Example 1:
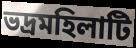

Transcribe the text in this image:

ভদ্রমহিলাটি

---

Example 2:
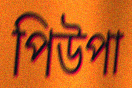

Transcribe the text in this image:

পিউপা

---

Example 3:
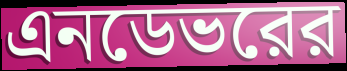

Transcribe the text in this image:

এনডেভরের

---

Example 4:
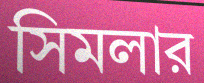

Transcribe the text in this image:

সিমলার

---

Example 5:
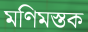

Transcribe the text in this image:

মণিমস্তক